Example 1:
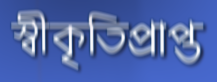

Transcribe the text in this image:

স্বীকৃতিপ্ৰাপ্ত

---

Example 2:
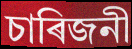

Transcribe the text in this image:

চাৰিজনী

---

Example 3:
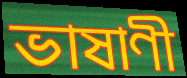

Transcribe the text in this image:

ভাষাণী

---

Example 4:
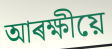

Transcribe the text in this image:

আৰক্ষীয়ে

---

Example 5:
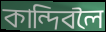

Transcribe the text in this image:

কান্দিবলৈ